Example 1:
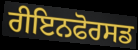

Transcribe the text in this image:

ਰੀਇਨਫੋਰਸਡ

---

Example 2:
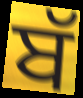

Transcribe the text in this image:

ਬੱ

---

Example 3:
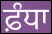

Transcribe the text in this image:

ਫ਼ੰਧਾ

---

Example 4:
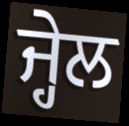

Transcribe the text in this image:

ਜ੍ਹੇਲ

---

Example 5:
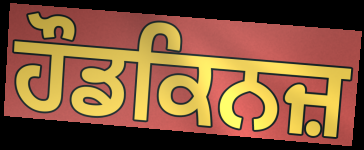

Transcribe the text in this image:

ਹੌਡਕਿਨਜ਼